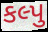
કલ્પુ